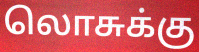
லொசுக்கு